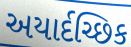
અયાર્દચ્છિક